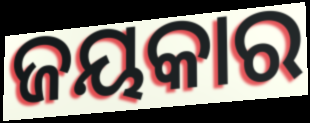
ଜୟକାର